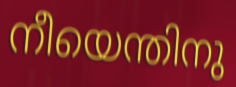
നീയെന്തിനു